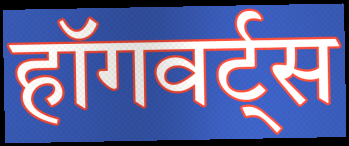
हॉगवर्ट्स